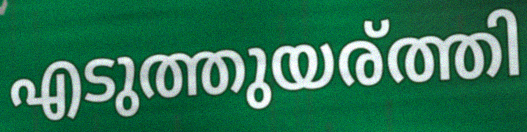
എടുത്തുയര്ത്തി